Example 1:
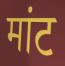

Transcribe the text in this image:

मांट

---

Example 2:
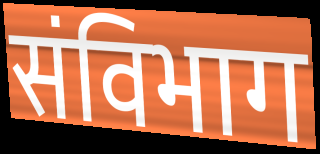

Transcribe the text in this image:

संविभाग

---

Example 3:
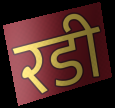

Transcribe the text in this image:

रडी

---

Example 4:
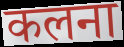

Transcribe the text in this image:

कलना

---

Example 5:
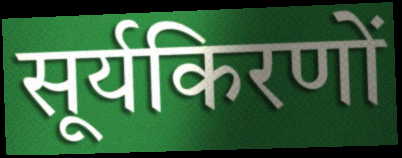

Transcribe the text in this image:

सूर्यकिरणों